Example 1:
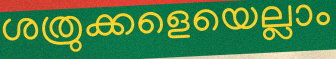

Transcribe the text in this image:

ശത്രുക്കളെയെല്ലാം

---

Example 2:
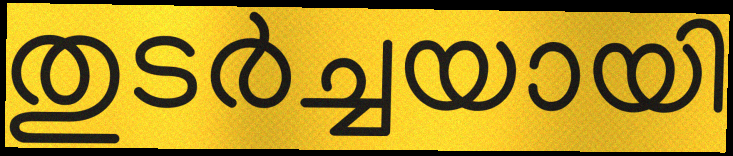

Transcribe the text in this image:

തുടർച്ചയായി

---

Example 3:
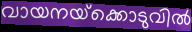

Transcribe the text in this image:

വായനയ്‌ക്കൊടുവിൽ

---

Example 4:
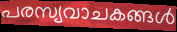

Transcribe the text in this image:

പരസ്യവാചകങ്ങൾ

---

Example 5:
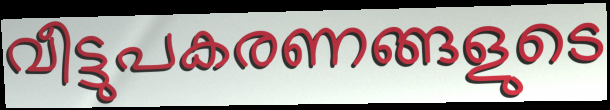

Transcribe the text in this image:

വീട്ടുപകരണങ്ങളുടെ